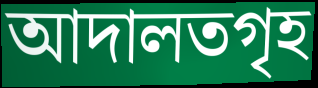
আদালতগৃহ